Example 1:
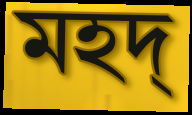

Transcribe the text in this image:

মহদ্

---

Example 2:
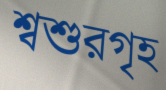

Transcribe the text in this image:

শ্বশুরগৃহ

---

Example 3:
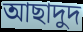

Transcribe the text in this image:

আছাদুদ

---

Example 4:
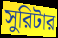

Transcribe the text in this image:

সুরিটার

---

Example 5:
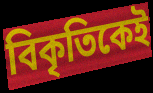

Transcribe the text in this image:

বিকৃতিকেই